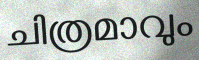
ചിത്രമാവും